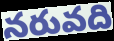
నరువది